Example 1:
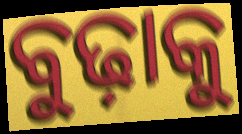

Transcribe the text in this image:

ବୁଢ଼ାକୁ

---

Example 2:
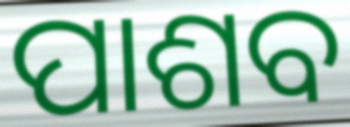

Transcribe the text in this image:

ପାଶବ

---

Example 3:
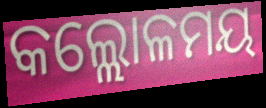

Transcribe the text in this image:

କଲ୍ଲୋଳମୟ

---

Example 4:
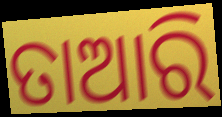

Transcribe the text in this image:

ତାଆରି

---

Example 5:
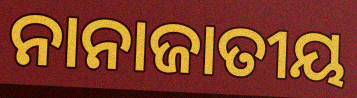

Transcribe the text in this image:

ନାନାଜାତୀୟ